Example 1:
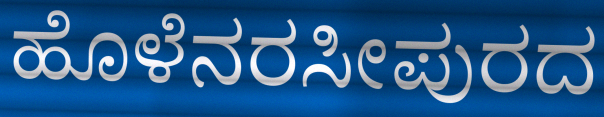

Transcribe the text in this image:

ಹೊಳೆನರಸೀಪುರದ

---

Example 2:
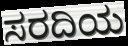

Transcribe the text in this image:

ಸರದಿಯ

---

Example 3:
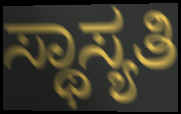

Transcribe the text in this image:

ಸ್ಥಾಸ್ಯತಿ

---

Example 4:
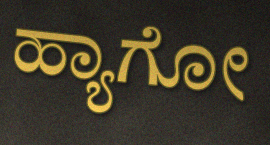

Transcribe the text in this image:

ಹ್ಯಾಗೋ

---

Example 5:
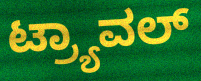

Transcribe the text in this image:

ಟ್ರ್ಯಾವಲ್